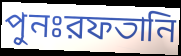
পুনঃরফতানি